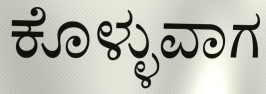
ಕೊಳ್ಳುವಾಗ